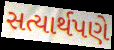
સત્યાર્થપણે